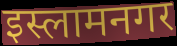
इस्लामनगर